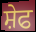
ਸ਼ੇਫ